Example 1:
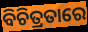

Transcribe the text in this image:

ବିଚିତ୍ରତାରେ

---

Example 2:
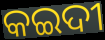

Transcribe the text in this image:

କଇଦୀ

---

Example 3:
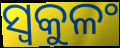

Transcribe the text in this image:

ସ୍ୱକୁଳଂ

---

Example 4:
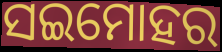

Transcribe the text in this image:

ସଇମୋହର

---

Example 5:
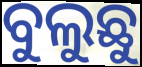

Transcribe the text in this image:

ବୁଲୁଛୁ